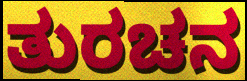
ತುರಚನ